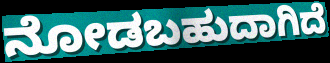
ನೋಡಬಹುದಾಗಿದೆ